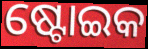
ଷ୍ଟୋଇକ